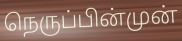
நெருப்பின்முன்